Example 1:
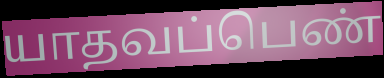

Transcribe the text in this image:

யாதவப்பெண்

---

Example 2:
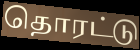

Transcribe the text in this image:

தொரட்டு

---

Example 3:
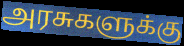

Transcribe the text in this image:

அரசுகளுக்கு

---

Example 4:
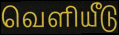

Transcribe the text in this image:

வெளியீடு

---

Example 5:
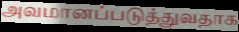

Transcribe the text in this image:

அவமானப்படுத்துவதாக